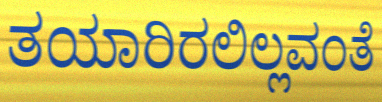
ತಯಾರಿರಲಿಲ್ಲವಂತೆ